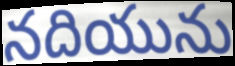
నదియును